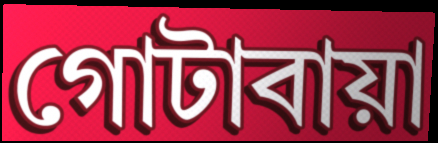
গোটাবায়া